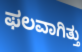
ಫಲವಾಗಿತ್ತು